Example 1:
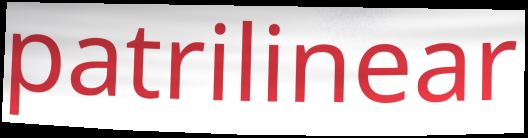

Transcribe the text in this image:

patrilinear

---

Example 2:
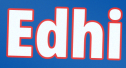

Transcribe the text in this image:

Edhi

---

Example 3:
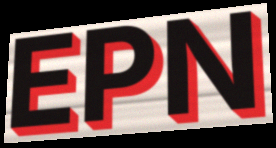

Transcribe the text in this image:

EPN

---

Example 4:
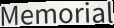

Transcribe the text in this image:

Memorial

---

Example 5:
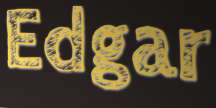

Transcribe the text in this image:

Edgar